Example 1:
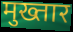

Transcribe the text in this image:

मुख्‍तार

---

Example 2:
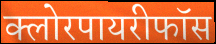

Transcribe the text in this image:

क्लोरपायरीफॉस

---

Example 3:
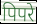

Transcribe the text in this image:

पिपरे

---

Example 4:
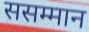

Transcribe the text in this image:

ससम्मान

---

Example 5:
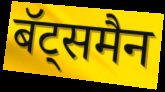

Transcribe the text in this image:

बॅट्समैन